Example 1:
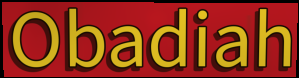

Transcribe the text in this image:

Obadiah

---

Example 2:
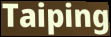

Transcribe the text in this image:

Taiping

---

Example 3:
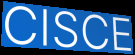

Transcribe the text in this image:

CISCE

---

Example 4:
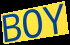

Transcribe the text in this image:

BOY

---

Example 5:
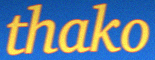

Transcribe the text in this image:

thako